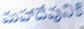
మహాదేవునికి